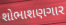
શોભાશણગાર